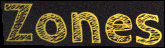
Zones